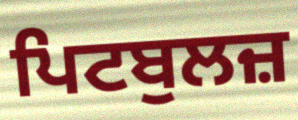
ਪਿਟਬੁਲਜ਼